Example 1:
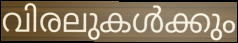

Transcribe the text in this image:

വിരലുകൾക്കും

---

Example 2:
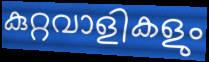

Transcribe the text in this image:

കുറ്റവാളികളും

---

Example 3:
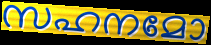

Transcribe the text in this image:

സഹനമോ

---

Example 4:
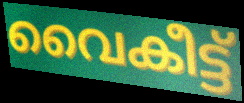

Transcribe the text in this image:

വൈകീട്ട്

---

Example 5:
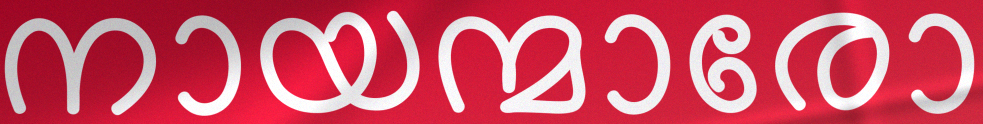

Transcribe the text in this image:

നായന്മാരോ